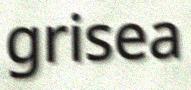
grisea